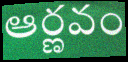
ఆర్ణవం